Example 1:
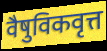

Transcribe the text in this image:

वैषुविकवृत्त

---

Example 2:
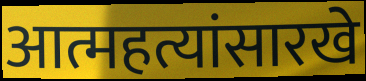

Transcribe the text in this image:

आत्महत्यांसारखे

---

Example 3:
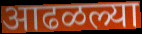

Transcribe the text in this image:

आढळल्या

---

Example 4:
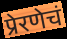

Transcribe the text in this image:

प्रेरणेचं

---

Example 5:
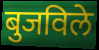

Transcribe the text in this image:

बुजविले